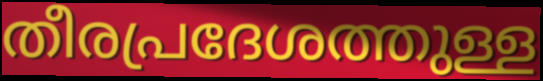
തീരപ്രദേശത്തുള്ള